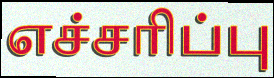
எச்சரிப்பு